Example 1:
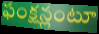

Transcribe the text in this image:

ఫంక్షన్లంటూ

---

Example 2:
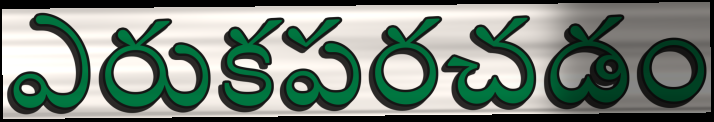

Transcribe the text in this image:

ఎరుకపరచడం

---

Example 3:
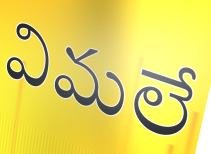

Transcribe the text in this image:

విమలే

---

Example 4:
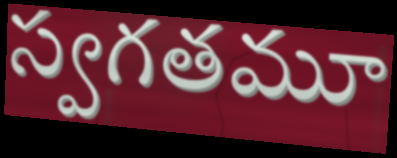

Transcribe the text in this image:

స్వగతమూ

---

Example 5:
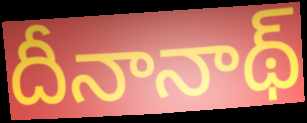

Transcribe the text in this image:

దీనానాథ్